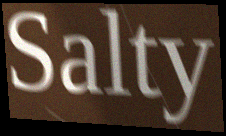
Salty